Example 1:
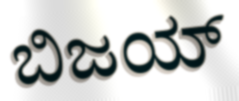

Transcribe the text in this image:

ಬಿಜಯ್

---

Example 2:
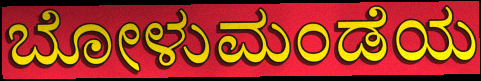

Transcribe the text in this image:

ಬೋಳುಮಂಡೆಯ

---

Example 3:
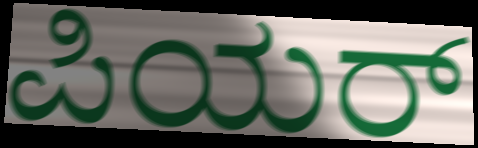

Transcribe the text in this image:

ಪಿಯರ್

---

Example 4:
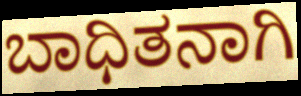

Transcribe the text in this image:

ಬಾಧಿತನಾಗಿ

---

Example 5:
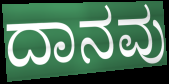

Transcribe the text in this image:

ದಾನವು